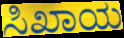
ಸಿಖಾಯ